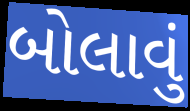
બોલાવું